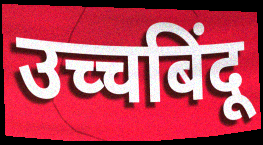
उच्चबिंदू